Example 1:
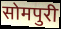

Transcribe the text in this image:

सोमपुरी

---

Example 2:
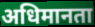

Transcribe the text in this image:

अधिमानता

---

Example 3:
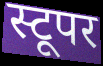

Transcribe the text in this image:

स्टूपर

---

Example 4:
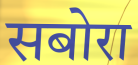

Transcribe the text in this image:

सबोरा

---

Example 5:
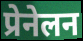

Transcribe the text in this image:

प्रेनेलन